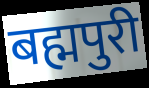
बह्मपुरी